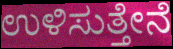
ಉಳಿಸುತ್ತೇನೆ